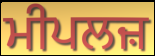
ਮੀਪਲਜ਼